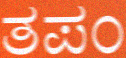
ತಪಂ